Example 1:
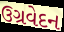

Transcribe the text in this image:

ઉગ્રવેદન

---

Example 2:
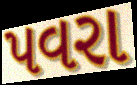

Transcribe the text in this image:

પવરા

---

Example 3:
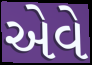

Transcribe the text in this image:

એવે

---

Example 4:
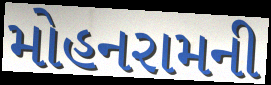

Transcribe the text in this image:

મોહનરામની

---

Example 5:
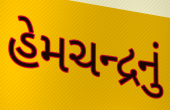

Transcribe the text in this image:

હેમચન્દ્રનું